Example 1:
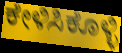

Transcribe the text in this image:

ಕೇಳಿಸಿಕೊಳ್ಳಿ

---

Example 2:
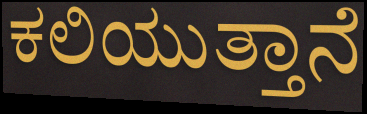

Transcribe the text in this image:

ಕಲಿಯುತ್ತಾನೆ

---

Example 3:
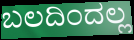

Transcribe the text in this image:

ಬಲದಿಂದಲ್ಲ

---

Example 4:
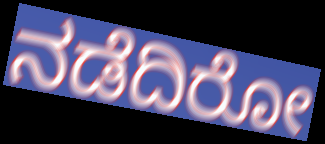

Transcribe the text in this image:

ನಡೆದಿರೋ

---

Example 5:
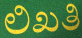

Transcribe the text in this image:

ಲಿಖತಿ